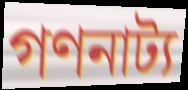
গণনাট্য